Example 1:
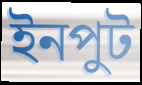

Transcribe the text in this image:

ইনপুট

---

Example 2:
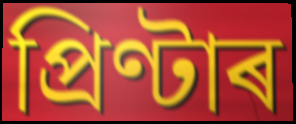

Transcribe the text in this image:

প্ৰিণ্টাৰ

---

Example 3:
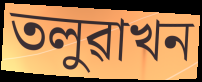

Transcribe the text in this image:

তলুৱাখন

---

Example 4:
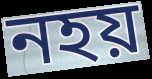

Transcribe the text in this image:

নহয়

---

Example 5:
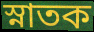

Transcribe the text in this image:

স্নাতক